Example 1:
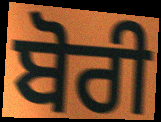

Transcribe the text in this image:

ਬੋਰੀ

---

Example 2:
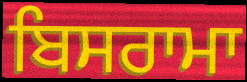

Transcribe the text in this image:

ਬਿਸਰਾਮਾ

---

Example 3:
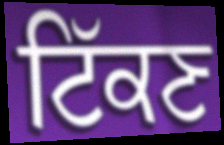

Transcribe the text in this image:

ਟਿੱਕਣ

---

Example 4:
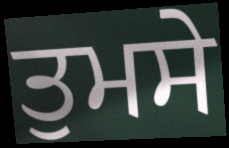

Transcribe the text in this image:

ਤੁਮਸੇ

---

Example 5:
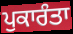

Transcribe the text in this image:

ਪੁਕਾਰੰਤਾ